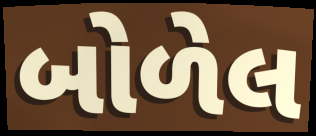
બોળેલ